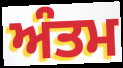
ਅੰਤਮ